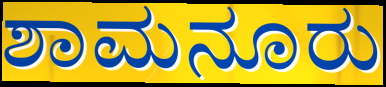
ಶಾಮನೂರು